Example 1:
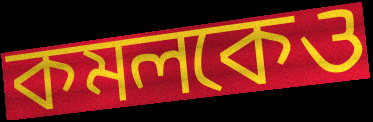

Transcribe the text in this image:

কমলকেও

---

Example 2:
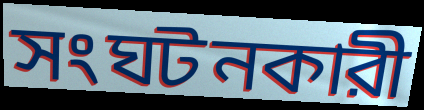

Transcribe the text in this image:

সংঘটনকারী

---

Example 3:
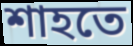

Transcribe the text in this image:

শাহতে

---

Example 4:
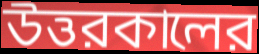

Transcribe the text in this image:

উত্তরকালের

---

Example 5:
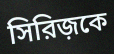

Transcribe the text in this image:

সিরিজ়কে